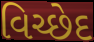
વિચ્છેદ